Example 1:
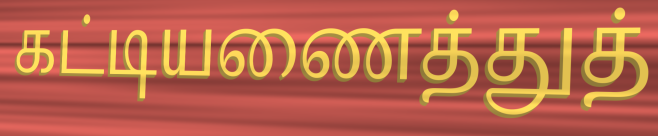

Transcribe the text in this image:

கட்டியணைத்துத்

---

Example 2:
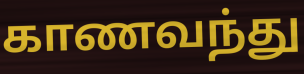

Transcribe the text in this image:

காணவந்து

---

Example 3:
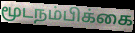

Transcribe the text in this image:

மூடநம்பிக்கை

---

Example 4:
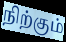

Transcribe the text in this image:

நிற்கும்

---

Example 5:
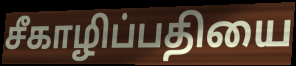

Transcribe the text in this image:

சீகாழிப்பதியை